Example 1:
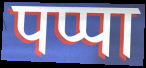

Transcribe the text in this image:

पप्‍पा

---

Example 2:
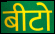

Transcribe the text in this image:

बीटो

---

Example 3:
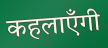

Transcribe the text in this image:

कहलाएँगी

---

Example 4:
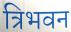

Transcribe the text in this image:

त्रिभवन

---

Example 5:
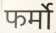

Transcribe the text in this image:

फर्मो